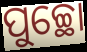
ପୁଚ୍ଛୋ